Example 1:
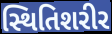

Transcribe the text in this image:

સ્થિતિશરીર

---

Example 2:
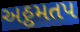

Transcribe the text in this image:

અઠ્ઠમતપ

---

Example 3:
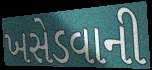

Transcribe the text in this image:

ખસેડવાની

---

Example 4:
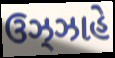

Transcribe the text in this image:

ઉઝ્ઝાહે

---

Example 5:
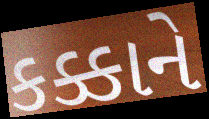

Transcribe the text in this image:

કક્કાને